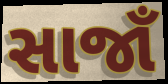
સાજાઁ